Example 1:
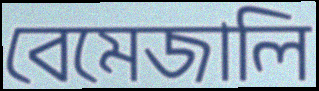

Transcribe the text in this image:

বেমেজালি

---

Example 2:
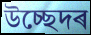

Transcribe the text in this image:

উচ্ছেদৰ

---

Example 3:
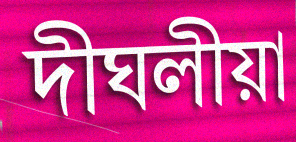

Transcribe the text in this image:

দীঘলীয়া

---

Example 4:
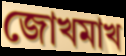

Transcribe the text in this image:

জোখমাখ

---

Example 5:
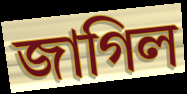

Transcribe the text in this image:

জাগিল